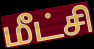
மீட்சி